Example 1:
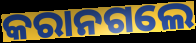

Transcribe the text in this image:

କରାନଗଲେ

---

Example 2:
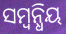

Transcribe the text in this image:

ସମ୍ଵନ୍ଧିୟ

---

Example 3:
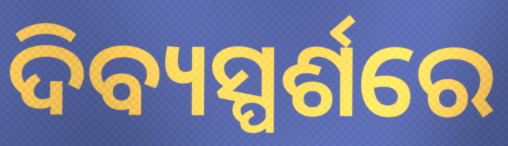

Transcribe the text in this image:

ଦିବ୍ୟସ୍ପର୍ଶରେ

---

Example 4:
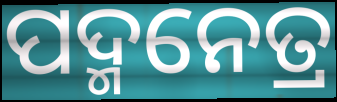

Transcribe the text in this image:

ପଦ୍ମନେତ୍ର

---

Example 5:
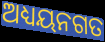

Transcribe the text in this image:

ଅଧ୍ୟୟନଗତ